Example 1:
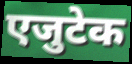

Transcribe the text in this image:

एजुटेक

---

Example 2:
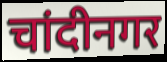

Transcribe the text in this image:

चांदीनगर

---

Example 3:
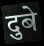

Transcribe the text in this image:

दुबे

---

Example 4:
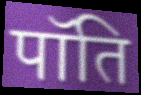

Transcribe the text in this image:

पॉति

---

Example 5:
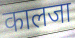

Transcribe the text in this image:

कालजा